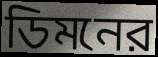
ডিমনের